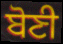
ਬੋਣੀ